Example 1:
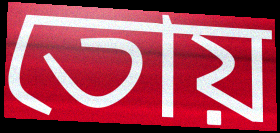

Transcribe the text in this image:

তোয়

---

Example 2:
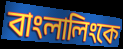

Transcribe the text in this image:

বাংলালিংকে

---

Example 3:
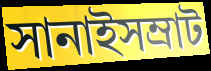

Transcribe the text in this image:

সানাইসম্রাট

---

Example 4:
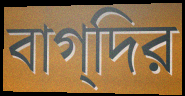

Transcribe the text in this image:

বাগ্‌দির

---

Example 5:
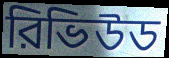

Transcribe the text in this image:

রিভিউড